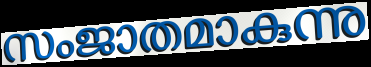
സംജാതമാകുന്നു